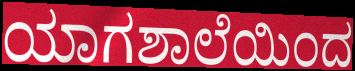
ಯಾಗಶಾಲೆಯಿಂದ